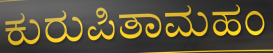
ಕುರುಪಿತಾಮಹಂ